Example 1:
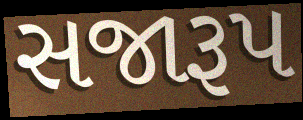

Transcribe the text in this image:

સજારૂપ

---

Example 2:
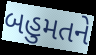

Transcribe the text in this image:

બહુમતને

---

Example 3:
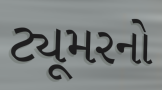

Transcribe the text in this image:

ટ્યૂમરનો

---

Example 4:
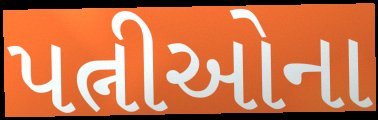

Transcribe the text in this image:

પત્નીઓના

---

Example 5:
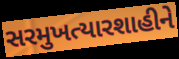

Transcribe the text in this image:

સરમુખત્યારશાહીને